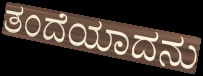
ತಂದೆಯಾದನು